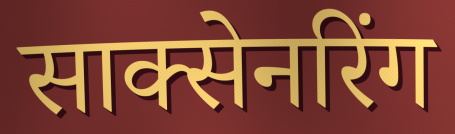
साक्सेनरिंग